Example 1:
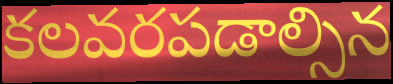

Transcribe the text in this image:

కలవరపడాల్సిన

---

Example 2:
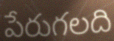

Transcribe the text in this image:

పేరుగలది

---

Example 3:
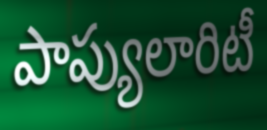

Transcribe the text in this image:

పాప్యులారిటీ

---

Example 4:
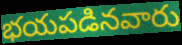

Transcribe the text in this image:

భయపడినవారు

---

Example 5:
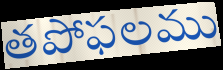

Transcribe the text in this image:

తపోఫలము